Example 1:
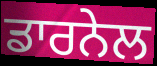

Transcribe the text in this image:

ਡਾਰਨੇਲ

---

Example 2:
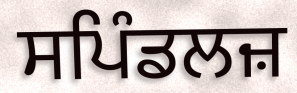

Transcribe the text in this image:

ਸਪਿੰਡਲਜ਼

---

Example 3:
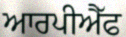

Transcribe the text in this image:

ਆਰਪੀਐੱਫ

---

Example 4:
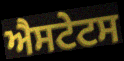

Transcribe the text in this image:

ਐਸਟੇਟਸ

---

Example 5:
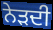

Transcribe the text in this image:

ਨੇੜਦੀ